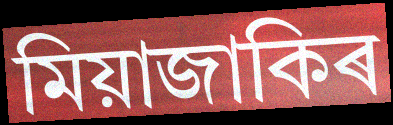
মিয়াজাকিৰ